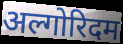
अल्गोरिदम